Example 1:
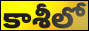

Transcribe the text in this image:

కాశీలో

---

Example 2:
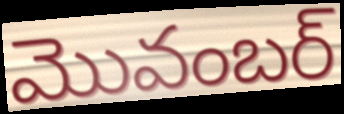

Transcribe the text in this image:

మొవంబర్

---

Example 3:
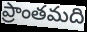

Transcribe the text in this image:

ప్రాంతమది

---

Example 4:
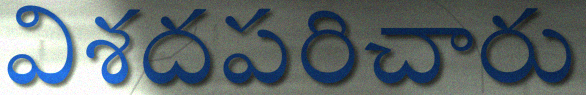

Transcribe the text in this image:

విశదపరిచారు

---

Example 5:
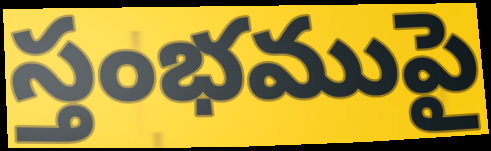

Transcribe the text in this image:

స్తంభముపై